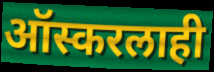
ऑस्करलाही